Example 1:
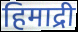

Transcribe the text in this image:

हिमाद्री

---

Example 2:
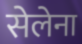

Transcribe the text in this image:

सेलेना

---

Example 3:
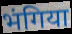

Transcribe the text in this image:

भंगिया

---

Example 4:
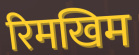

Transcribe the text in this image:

रिमखिम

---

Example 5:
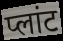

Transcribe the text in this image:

प्लांट